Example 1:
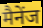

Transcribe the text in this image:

मैनेंज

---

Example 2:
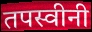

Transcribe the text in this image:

तपस्वीनी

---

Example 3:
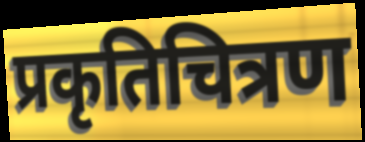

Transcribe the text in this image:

प्रकृतिचित्रण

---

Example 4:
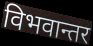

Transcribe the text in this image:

विभवान्तर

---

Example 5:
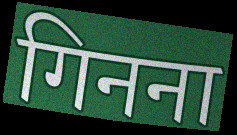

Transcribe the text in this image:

गिनना